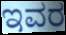
ಇವರ